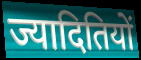
ज्यादितियों